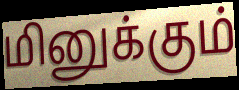
மினுக்கும்